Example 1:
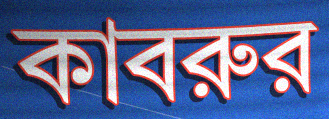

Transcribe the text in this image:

কাবরুর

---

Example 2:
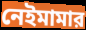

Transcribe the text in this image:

নেইমামার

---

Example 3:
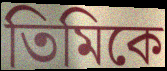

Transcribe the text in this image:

তিমিকে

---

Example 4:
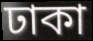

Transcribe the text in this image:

ঢাকা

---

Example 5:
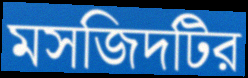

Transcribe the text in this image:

মসজিদটির